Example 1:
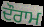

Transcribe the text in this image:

ਦੌਰਾਮ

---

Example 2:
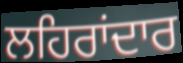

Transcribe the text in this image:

ਲਹਿਰਾਂਦਾਰ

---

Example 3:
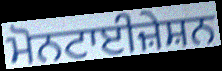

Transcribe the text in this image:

ਮੋਨਟਾਈਜ਼ੇਸ਼ਨ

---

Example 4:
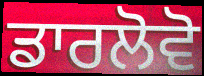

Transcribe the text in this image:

ਡਾਰਲੋਵੋ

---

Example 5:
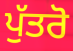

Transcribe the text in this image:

ਪੁੱਤਰੋ